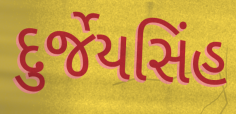
દુર્જેયસિંહ